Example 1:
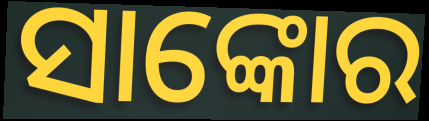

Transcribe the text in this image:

ସାଙ୍କୋର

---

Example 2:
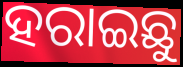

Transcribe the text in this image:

ହରାଇଛୁ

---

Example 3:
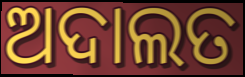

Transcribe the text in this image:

ଅଦାଲତ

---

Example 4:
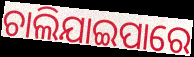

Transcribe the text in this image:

ଚାଲିଯାଇପାରେ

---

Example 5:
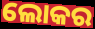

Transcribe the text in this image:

ଲୋକର